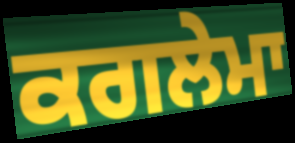
ਕਗਲੇਮਾ